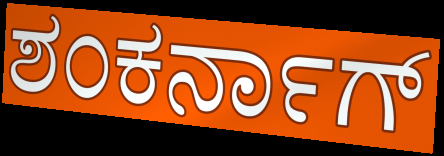
ಶಂಕರ್ನಾಗ್